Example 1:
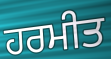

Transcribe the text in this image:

ਹਰਮੀਤ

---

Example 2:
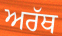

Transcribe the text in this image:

ਅਰੱਥ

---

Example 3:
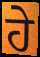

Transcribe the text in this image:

ਹੇ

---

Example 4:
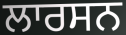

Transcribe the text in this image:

ਲਾਰਸਨ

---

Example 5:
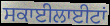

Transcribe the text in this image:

ਸਕਾਈਲਾਈਟਾਂ